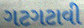
ગટગટાવી